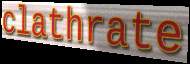
clathrate